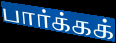
பார்க்கக்